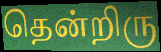
தென்றிரு